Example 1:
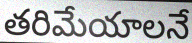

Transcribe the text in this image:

తరిమేయాలనే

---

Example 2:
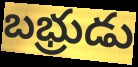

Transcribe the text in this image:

బభ్రుడు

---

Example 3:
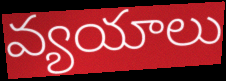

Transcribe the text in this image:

వ్యయాలు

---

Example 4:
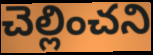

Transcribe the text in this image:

చెల్లించని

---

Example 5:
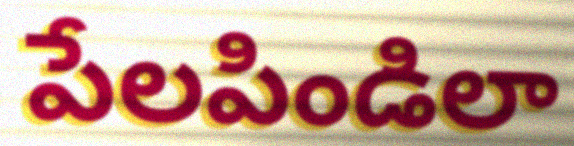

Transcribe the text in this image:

పేలపిండిలా